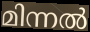
മിന്നൽ